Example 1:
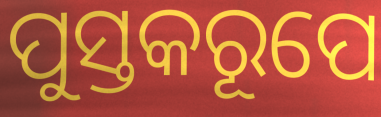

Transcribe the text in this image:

ପୁସ୍ତକରୂପେ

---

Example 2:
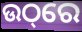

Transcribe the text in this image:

ଉଠ୍‌ରେ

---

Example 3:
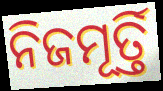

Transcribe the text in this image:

ନିଜମୂର୍ତ୍ତି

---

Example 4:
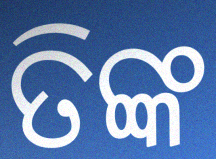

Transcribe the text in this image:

ତିଙ୍କ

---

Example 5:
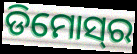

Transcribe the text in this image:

ଡିମୋସ୍‌ର